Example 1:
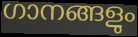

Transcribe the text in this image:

ഗാനങ്ങളും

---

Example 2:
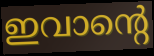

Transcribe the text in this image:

ഇവാന്റെ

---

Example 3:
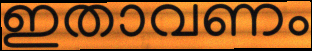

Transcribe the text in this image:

ഇതാവണം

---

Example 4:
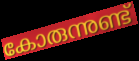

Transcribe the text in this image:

കോരുന്നുണ്ട്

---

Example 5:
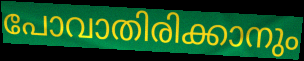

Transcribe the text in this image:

പോവാതിരിക്കാനും